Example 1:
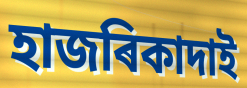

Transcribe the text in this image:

হাজৰিকাদাই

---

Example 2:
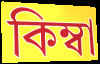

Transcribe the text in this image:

কিম্বা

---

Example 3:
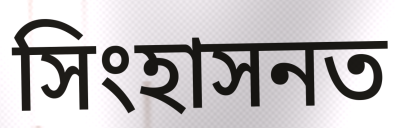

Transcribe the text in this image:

সিংহাসনত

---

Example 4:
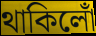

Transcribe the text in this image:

থাকিলোঁ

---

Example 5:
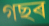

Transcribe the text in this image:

গছৰ